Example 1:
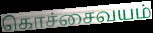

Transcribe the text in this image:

கொச்சைவயம்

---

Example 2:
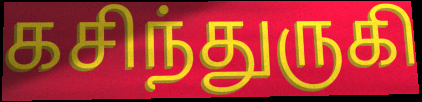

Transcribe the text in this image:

கசிந்துருகி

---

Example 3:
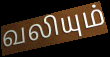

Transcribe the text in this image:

வலியும்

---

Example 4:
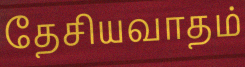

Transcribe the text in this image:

தேசியவாதம்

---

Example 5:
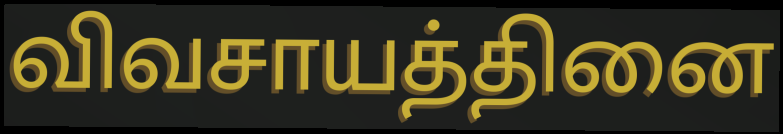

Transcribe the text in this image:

விவசாயத்தினை